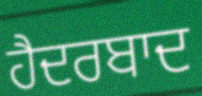
ਹੈਦਰਬਾਦ